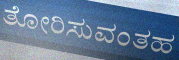
ತೋರಿಸುವಂತಹ